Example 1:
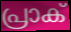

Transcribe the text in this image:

പ്രാക്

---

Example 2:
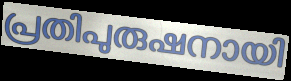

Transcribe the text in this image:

പ്രതിപുരുഷനായി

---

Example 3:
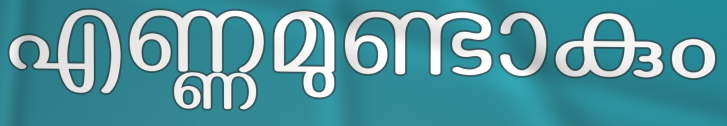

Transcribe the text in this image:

എണ്ണമുണ്ടാകും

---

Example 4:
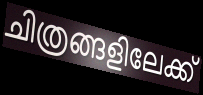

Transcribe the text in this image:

ചിത്രങ്ങളിലേക്ക്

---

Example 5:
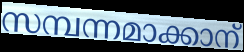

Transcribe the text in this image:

സമ്പന്നമാക്കാന്